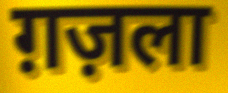
ग़ज़ला